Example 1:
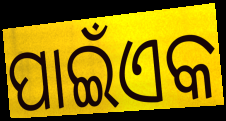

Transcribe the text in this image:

ପାଇଁଏକ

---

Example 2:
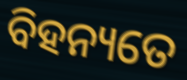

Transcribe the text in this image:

ବିହନ୍ୟତେ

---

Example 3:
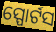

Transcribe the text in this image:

ସ୍ପୋର୍ଟସ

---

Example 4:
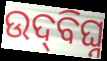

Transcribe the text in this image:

ଉଦ୍‌ବିଘ୍ନ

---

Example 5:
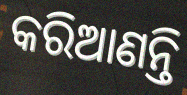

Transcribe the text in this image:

କରିଆଣନ୍ତି